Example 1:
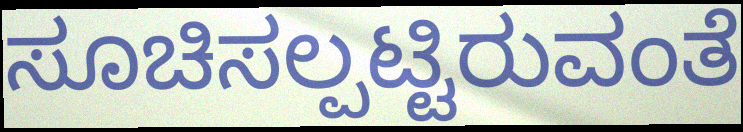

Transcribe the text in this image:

ಸೂಚಿಸಲ್ಪಟ್ಟಿರುವಂತೆ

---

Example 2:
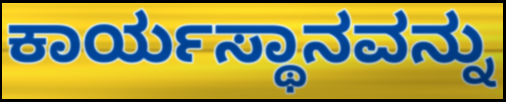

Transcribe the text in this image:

ಕಾರ್ಯಸ್ಥಾನವನ್ನು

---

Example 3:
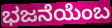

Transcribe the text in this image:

ಭಜನೆಯೆಂಬ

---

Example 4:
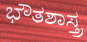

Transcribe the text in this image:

ಭೌತಶಾಸ್ತ್ರ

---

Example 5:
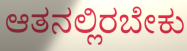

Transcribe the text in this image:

ಆತನಲ್ಲಿರಬೇಕು